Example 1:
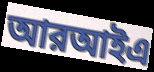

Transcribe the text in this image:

আরআইএ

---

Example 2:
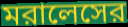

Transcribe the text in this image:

মরালেসের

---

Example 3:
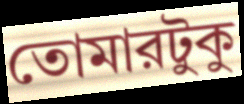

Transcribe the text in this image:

তোমারটুকু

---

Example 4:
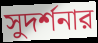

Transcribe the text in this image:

সুদর্শনার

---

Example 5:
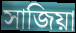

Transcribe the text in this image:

সাজিয়া